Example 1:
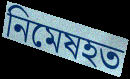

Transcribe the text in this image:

নিমেষহত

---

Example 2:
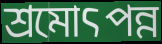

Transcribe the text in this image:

শ্রমোৎপন্ন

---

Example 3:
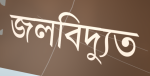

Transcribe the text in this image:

জলবিদ্যুত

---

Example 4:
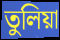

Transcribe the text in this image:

তুলিয়া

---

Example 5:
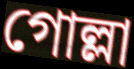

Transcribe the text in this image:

গোল্লা